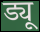
ड्यू